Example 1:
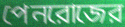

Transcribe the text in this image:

পেনরোজের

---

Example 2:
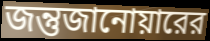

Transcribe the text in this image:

জন্তুজানোয়ারের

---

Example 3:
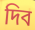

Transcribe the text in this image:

দিব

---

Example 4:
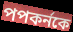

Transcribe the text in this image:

পপকর্নকে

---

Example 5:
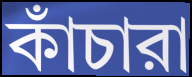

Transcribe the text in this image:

কাঁচারা